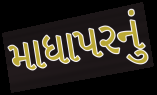
માધાપરનું